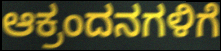
ಆಕ್ರಂದನಗಳಿಗೆ